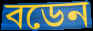
বডেন